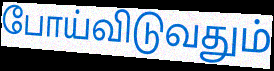
போய்விடுவதும்